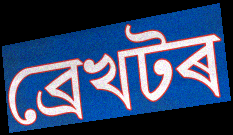
ব্ৰেখটৰ